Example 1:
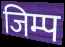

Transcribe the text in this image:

जिम्प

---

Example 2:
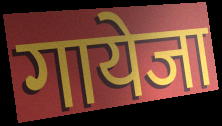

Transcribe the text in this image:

गायेजा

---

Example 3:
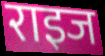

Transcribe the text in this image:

राइज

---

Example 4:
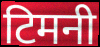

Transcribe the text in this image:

टिमनी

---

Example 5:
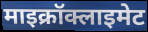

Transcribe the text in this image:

माइक्रॉक्लाइमेट